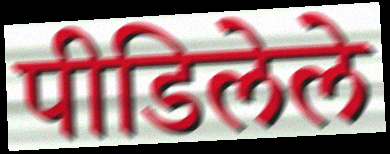
पीडिलेले